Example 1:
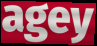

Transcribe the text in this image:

agey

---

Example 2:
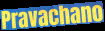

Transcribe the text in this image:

Pravachano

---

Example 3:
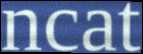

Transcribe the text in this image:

ncat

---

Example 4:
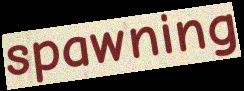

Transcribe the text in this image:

spawning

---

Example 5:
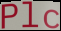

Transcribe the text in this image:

Plc